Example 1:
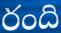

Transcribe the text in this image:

రంది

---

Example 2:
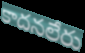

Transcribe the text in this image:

కాదనలేరు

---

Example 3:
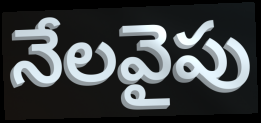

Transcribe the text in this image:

నేలవైపు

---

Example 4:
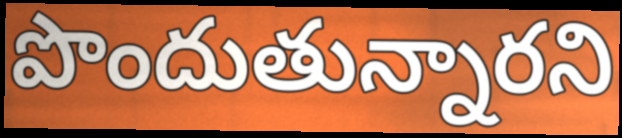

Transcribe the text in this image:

పొందుతున్నారని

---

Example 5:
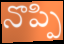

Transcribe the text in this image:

నొప్పి